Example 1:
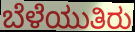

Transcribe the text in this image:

ಬೆಳೆಯುತಿರು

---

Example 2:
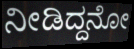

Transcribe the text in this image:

ನೀಡಿದ್ದನೋ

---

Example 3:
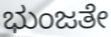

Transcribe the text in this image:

ಭುಂಜತೇ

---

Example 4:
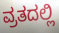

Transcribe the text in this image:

ವ್ರತದಲ್ಲಿ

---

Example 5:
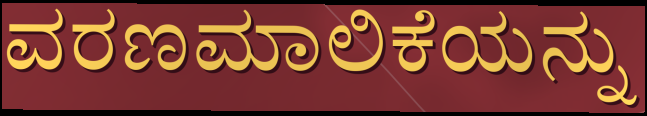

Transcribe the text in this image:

ವರಣಮಾಲಿಕೆಯನ್ನು